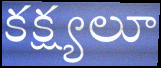
కక్ష్యలూ